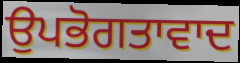
ਉਪਭੋਗਤਾਵਾਦ